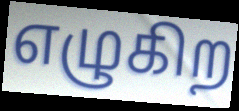
எழுகிற